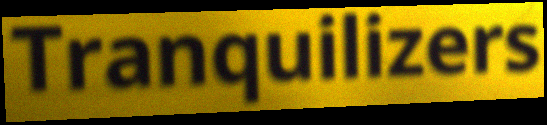
Tranquilizers